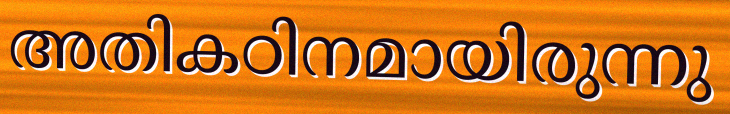
അതികഠിനമായിരുന്നു